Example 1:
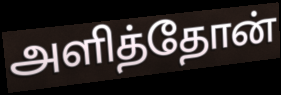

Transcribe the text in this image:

அளித்தோன்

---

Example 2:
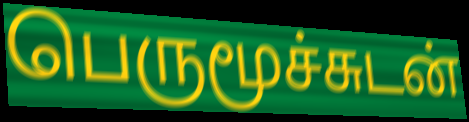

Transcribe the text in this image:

பெருமூச்சுடன்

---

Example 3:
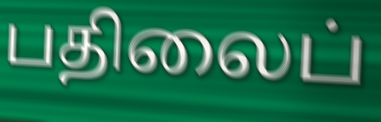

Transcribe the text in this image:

பதிலைப்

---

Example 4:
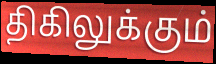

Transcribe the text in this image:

திகிலுக்கும்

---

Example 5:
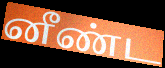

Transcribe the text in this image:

னீண்ட